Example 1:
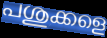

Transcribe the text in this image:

പശുക്കളെ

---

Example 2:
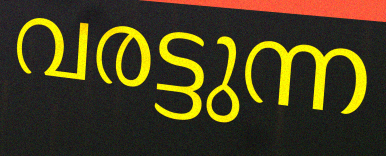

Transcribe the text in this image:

വരട്ടുന്ന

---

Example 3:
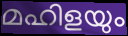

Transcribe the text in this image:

മഹിളയും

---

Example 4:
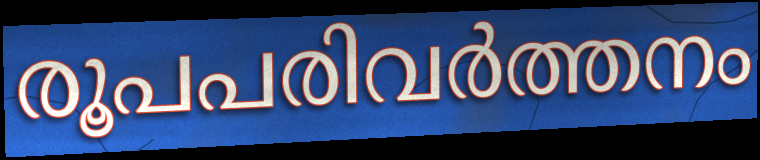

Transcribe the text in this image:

രൂപപരിവർത്തനം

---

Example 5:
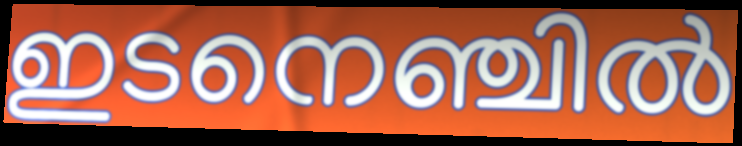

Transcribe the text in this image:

ഇടനെഞ്ചിൽ